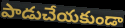
పాడుచేయకుండా